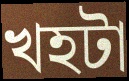
খহটা